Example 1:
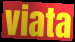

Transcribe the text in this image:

viata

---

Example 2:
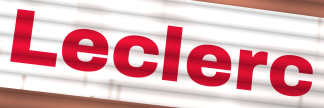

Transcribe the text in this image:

Leclerc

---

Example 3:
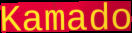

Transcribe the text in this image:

Kamado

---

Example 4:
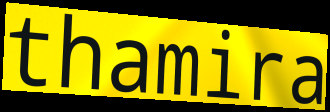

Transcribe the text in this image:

thamira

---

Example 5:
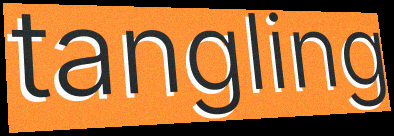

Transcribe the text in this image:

tangling